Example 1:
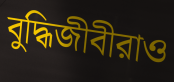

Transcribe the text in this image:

বুদ্ধিজীবীরাও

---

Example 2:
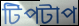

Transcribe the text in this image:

টিপটাপ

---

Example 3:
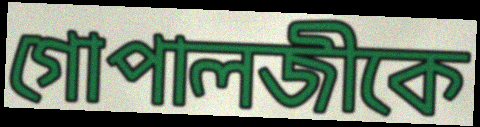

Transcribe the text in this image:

গোপালজীকে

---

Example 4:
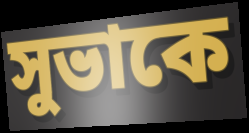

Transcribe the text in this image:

সুভাকে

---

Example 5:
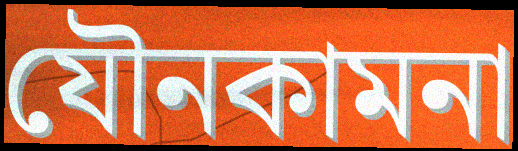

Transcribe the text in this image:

যৌনকামনা